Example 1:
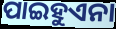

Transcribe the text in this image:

ପାଇହୁଏନା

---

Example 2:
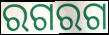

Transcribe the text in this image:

ରଗରଗ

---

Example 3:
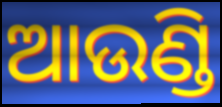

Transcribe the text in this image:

ଆଉଣ୍ଡି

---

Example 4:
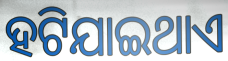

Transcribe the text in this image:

ହଟିଯାଇଥାଏ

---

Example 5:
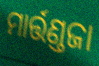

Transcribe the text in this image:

ମାର୍ତ୍ତଣ୍ଡଜା